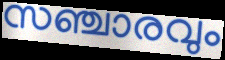
സഞ്ചാരവും